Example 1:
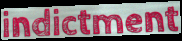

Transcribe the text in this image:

indictment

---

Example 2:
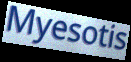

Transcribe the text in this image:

Myesotis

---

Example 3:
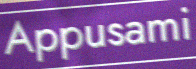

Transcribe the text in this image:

Appusami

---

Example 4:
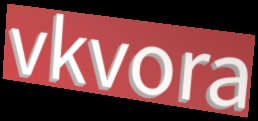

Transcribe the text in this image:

vkvora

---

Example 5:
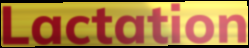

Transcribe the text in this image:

Lactation